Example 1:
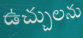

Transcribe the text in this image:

ఉచ్చులను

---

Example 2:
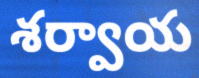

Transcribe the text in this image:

శర్వాయ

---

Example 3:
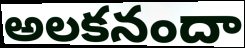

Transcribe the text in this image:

అలకనందా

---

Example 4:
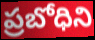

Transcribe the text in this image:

ప్రబోధిని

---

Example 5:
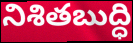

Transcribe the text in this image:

నిశితబుద్ధి